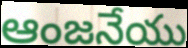
ఆంజనేయు